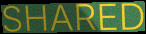
SHARED